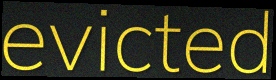
evicted